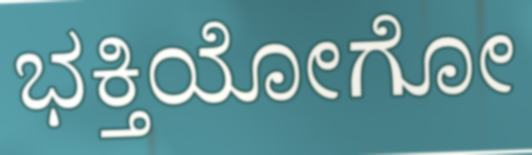
ಭಕ್ತಿಯೋಗೋ